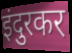
इंदुरकर